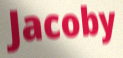
Jacoby